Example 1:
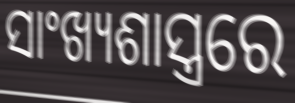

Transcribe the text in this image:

ସାଂଖ୍ୟଶାସ୍ତ୍ରରେ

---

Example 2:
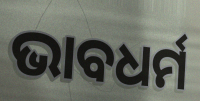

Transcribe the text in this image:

ଭାବଧର୍ମ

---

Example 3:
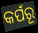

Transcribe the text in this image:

କର୍ପରୂ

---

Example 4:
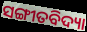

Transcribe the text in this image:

ସଙ୍ଗୀତବିଦ୍ୟା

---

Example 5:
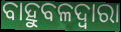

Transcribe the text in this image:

ବାହୁବଳଦ୍ୱାରା